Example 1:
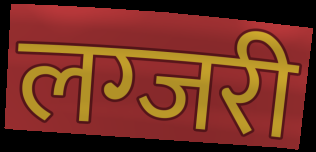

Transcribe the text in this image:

लग्‍जरी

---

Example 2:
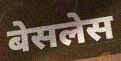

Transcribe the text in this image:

बेसलेस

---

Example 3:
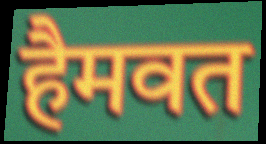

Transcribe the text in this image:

हैमवत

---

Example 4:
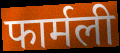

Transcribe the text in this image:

फार्मली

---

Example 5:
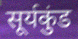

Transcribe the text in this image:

सूर्यकुंड